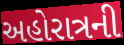
અહોરાત્રની